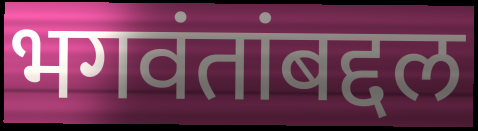
भगवंतांबद्दल